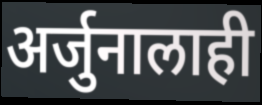
अर्जुनालाही